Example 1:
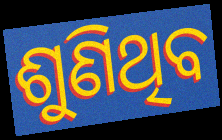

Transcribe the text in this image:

ଶୁଣିଥିବ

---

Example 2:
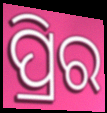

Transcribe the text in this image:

ପ୍ରିର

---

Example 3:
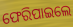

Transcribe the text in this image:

ଫେରିପାଇଲେ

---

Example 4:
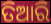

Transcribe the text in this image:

ତିଆରି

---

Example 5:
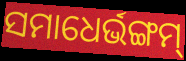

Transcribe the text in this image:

ସମାଧେର୍ଭଙ୍ଗମ୍